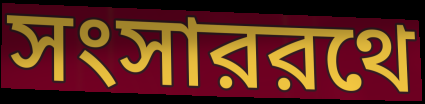
সংসাররথে